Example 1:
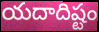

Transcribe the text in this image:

యదాదిష్టం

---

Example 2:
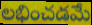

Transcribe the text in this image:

లభించడమే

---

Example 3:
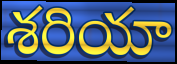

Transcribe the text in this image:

శరియా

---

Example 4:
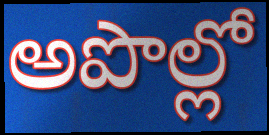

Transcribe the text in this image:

అపొల్లో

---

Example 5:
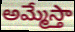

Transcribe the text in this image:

అమ్మేస్తా